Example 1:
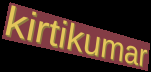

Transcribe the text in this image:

kirtikumar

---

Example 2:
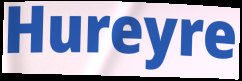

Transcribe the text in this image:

Hureyre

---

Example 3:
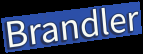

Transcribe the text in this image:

Brandler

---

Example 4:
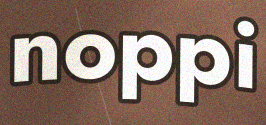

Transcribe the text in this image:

noppi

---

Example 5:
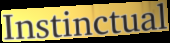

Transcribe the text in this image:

Instinctual